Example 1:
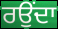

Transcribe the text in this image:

ਰਉਂਦਾ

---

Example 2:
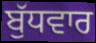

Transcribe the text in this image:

ਬੁੱਧਵਾਰ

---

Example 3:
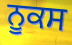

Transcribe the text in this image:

ਨੂਕਸ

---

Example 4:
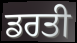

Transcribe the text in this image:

ਡਰਤੀ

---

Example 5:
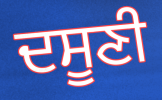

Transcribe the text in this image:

ਦਸੂਣੀ